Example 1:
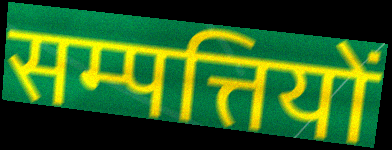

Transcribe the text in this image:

सम्पत्तियों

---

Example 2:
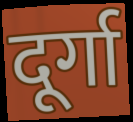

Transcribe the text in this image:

दूर्गा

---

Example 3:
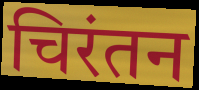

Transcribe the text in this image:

चिरंतन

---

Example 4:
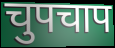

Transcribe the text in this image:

चुपचाप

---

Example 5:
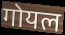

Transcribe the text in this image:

गोयल